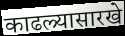
काढल्यासारखे